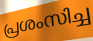
പ്രശംസിച്ച